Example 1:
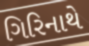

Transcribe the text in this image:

ગિરિનાથે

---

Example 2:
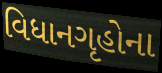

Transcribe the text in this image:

વિધાનગૃહોના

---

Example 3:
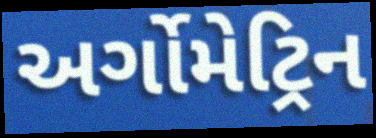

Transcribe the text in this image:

અર્ગોમેટ્રિન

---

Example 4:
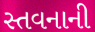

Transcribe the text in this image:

સ્તવનાની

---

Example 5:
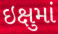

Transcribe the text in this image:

ઇક્ષુમાં